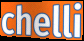
chelli